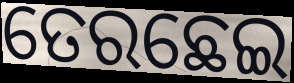
ତେରଛେଇ